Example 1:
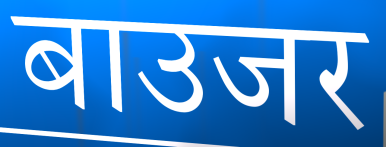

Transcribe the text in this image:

बाउजर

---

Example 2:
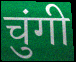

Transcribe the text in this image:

चुंगी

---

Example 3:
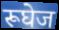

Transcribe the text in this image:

रूघेज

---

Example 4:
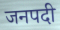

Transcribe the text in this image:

जनपदी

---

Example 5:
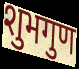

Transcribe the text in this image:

शुभगुण